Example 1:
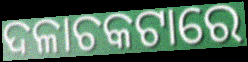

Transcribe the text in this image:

ଦଳାଚକଟାରେ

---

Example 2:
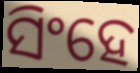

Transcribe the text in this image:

ସିଂହେ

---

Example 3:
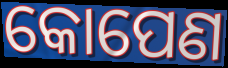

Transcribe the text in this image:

କୋପେଣ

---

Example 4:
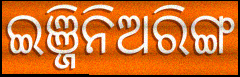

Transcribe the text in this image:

ଇଞ୍ଜିନିଅରିଙ୍ଗ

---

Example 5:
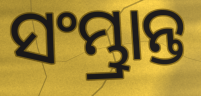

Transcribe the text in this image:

ସଂମ୍ଭ୍ରାନ୍ତ